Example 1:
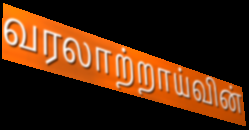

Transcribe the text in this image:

வரலாற்றாய்வின்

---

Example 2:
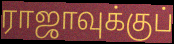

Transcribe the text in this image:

ராஜாவுக்குப்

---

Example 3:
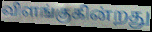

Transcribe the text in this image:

விளங்குகின்றது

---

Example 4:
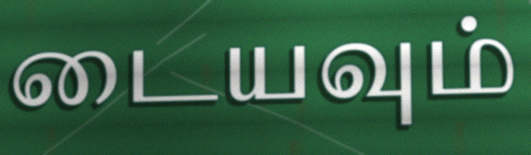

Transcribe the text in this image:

டையவும்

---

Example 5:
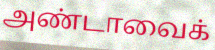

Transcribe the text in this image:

அண்டாவைக்